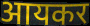
आयकर